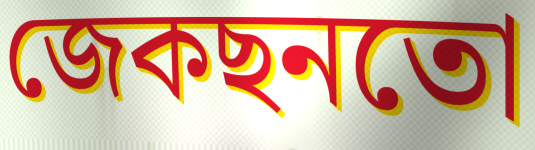
জেকছনতো